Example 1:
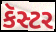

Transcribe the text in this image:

કૅસ્ટર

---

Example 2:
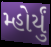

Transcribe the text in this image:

મ્હોર્યું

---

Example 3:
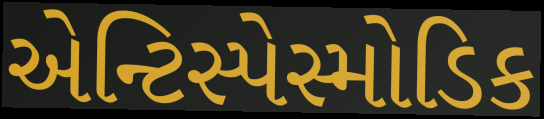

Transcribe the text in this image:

એન્ટિસ્પેસ્મોડિક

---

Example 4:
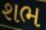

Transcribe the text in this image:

શભ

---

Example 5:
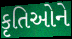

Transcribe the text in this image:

કૃતિઓને